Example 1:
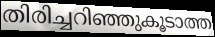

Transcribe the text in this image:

തിരിച്ചറിഞ്ഞുകൂടാത്ത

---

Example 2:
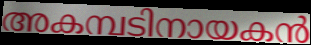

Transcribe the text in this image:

അകമ്പടിനായകൻ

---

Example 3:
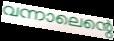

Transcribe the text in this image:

വന്നാലെന്റെ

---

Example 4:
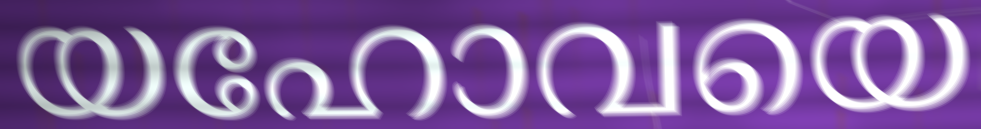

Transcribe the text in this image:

യഹോവയെ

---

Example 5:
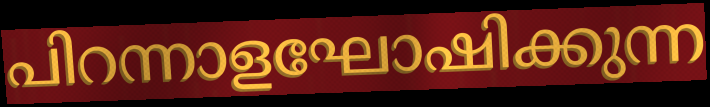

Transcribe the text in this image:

പിറന്നാളഘോഷിക്കുന്ന